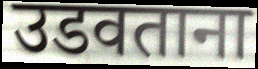
उडवताना